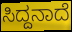
ಸಿದ್ದನಾದೆ